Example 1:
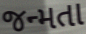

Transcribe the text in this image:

જન્મતા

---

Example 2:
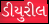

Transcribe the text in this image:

ડીયુરીલ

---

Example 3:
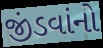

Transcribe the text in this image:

જીંડવાંનો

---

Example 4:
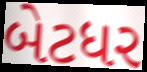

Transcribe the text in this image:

બેટધર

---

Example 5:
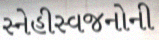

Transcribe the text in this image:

સ્નેહીસ્વજનોની